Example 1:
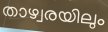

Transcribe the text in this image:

താഴ്വരയിലും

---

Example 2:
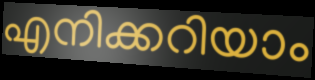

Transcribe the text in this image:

എനിക്കറിയാം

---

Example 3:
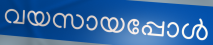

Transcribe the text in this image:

വയസായപ്പോൾ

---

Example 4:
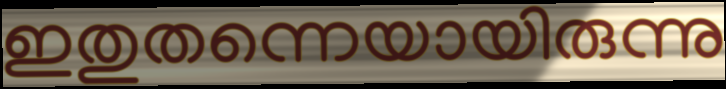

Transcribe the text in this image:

ഇതുതന്നെയായിരുന്നു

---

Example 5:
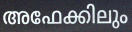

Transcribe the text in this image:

അഫേക്കിലും